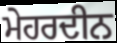
ਮੇਹਰਦੀਨ